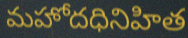
మహోదధినిహిత